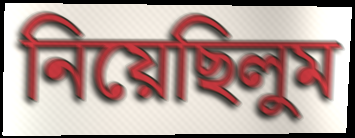
নিয়েছিলুম